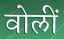
वोलीं